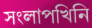
সংলাপখিনি